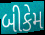
બીકેમ